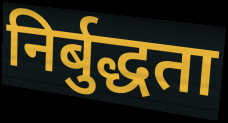
निर्बुद्धता